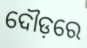
ଦୌଡ଼ରେ